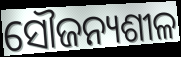
ସୌଜନ୍ୟଶୀଳ